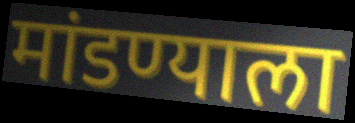
मांडण्याला